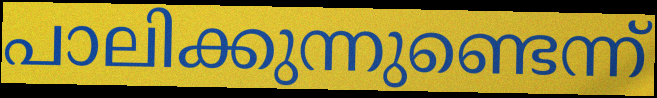
പാലിക്കുന്നുണ്ടെന്ന്